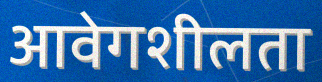
आवेगशीलता